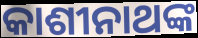
କାଶୀନାଥଙ୍କ